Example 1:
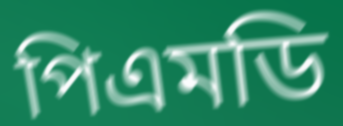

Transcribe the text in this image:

পিএমডি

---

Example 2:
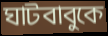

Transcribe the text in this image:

ঘাটবাবুকে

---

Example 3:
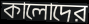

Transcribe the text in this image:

কালোদের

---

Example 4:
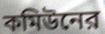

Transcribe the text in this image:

কমিউনের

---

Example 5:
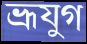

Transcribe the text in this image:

ভ্রূযুগ